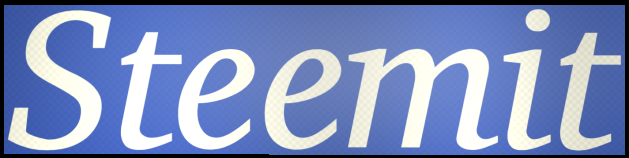
Steemit